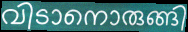
വിടാനൊരുങ്ങി